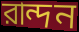
রান্দন